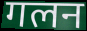
गलन